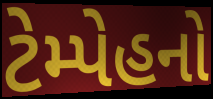
ટેમ્પેહનો